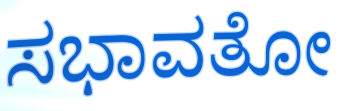
ಸಭಾವತೋ